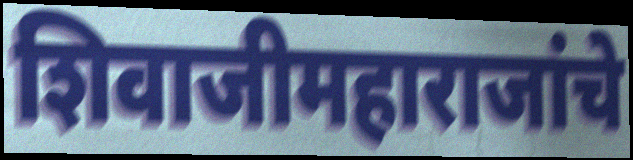
शिवाजीमहाराजांचे